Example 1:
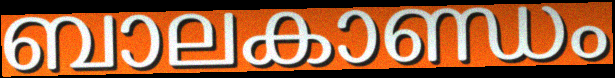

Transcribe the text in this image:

ബാലകാണ്ഡം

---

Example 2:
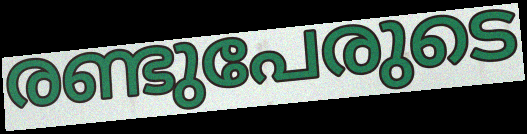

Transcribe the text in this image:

രണ്ടുപേരുടെ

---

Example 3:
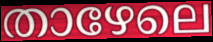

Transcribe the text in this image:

താഴേലെ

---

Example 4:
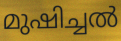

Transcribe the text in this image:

മുഷിച്ചൽ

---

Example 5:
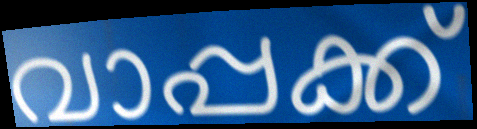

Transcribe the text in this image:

വാപ്പക്ക്